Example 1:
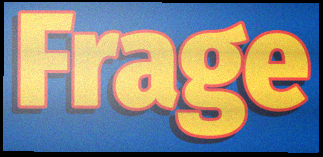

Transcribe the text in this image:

Frage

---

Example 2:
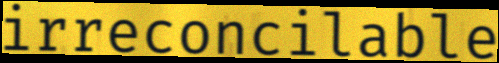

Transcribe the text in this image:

irreconcilable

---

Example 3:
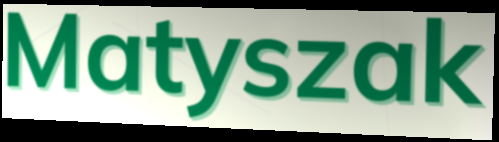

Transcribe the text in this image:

Matyszak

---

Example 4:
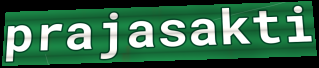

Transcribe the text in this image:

prajasakti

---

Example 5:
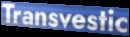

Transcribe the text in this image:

Transvestic